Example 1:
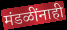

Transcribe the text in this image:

मंडळींनाही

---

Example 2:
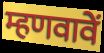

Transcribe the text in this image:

म्हणवावें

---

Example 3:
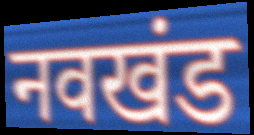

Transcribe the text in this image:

नवखंड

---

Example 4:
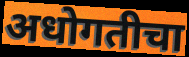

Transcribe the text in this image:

अधोगतीचा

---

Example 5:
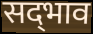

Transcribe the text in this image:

सद्‍भाव